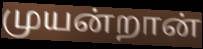
முயன்றான்